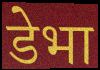
डेभा